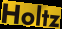
Holtz